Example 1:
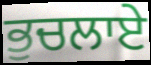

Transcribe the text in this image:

ਭੁਚਲਾਏ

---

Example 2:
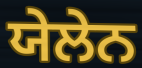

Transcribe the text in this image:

ਯੇਲੇਨ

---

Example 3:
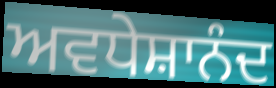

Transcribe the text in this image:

ਅਵਧੇਸ਼ਾਨੰਦ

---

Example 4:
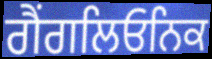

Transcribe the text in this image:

ਗੈਂਗਲਿਓਨਿਕ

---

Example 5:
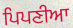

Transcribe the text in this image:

ਪਿਪਣੀਆ